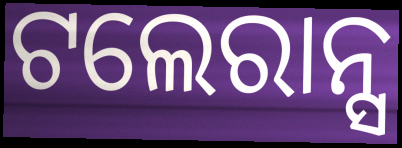
ଟଲେରାନ୍ସ